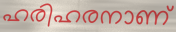
ഹരിഹരനാണ്